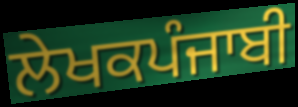
ਲੇਖਕਪੰਜਾਬੀ